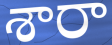
శారా